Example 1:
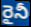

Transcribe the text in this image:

రైనీ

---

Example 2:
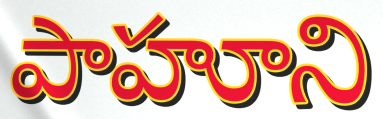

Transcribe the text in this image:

పాహూని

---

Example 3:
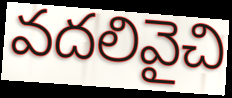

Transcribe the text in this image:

వదలివైచి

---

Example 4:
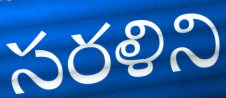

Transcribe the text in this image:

సరళిని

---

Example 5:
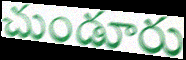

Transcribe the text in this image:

చుండూరు